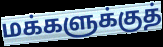
மக்களுக்குத்